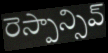
రెస్పాన్సివ్